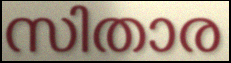
സിതാര